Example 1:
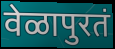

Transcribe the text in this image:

वेळापुरतं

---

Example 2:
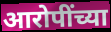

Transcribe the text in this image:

आरोपींच्या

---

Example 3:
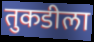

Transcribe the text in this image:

तुकडीला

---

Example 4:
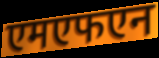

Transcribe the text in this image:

एमएफएन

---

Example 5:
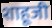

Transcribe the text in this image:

शाहूजी